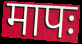
मापः